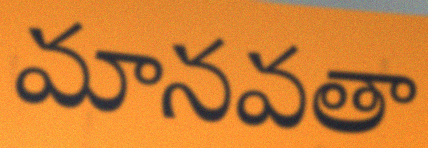
మానవతా